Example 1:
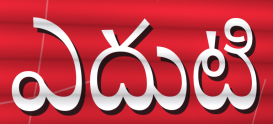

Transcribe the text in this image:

ఎదుటి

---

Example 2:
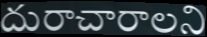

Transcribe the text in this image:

దురాచారాలని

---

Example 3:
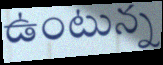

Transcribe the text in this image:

ఉంటున్న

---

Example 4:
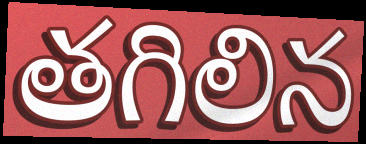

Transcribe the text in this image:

తగిలిన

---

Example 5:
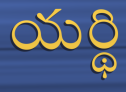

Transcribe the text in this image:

యర్థి